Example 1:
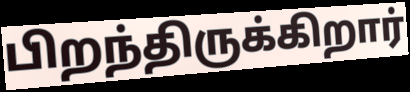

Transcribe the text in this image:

பிறந்திருக்கிறார்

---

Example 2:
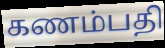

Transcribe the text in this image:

கணம்பதி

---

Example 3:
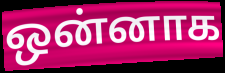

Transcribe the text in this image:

ஒன்னாக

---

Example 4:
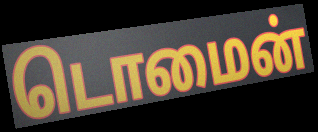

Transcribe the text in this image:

டொமைன்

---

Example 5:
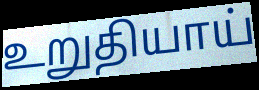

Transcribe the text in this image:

உறுதியாய்